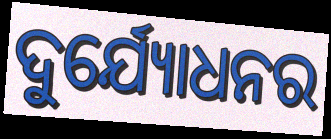
ଦୁର୍ଯ୍ଯୋଧନର